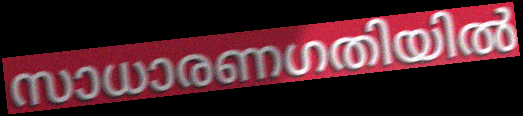
സാധാരണഗതിയിൽ